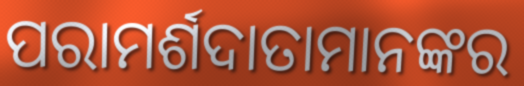
ପରାମର୍ଶଦାତାମାନଙ୍କର